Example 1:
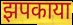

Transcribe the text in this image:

झपकाया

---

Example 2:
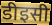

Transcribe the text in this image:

डीइसी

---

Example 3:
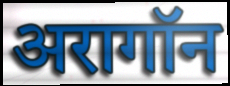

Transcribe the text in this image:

अरागॉन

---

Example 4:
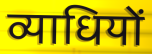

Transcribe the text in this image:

व्याधियों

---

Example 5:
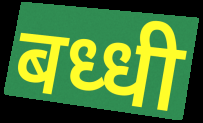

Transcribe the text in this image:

बध्धी